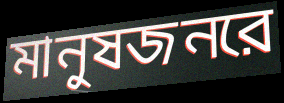
মানুষজনরে